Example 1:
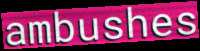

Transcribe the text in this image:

ambushes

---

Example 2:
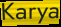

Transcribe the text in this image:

Karya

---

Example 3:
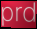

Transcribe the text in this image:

prd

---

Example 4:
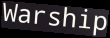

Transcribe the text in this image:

Warship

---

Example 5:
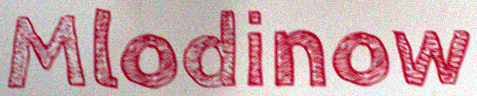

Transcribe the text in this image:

Mlodinow